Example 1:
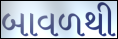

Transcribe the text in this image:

બાવળથી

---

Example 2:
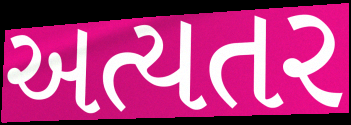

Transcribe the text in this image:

અત્યતર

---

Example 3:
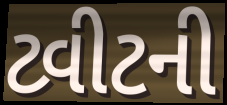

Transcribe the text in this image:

ટ્વીટની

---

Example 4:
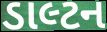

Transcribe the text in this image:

ડાલ્ટન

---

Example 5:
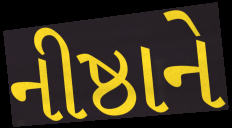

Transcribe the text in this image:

નીષ્ઠાને